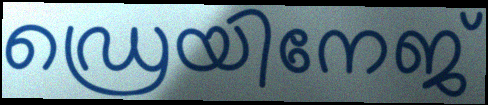
ഡ്രെയിനേജ്